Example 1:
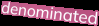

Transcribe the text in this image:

denominated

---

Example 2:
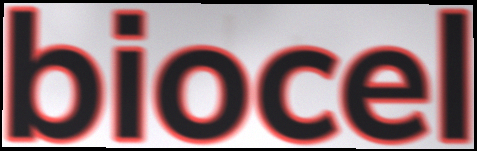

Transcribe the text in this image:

biocel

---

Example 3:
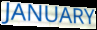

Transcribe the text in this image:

JANUARY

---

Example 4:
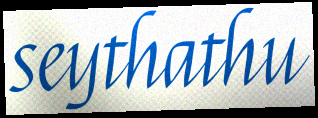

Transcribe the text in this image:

seythathu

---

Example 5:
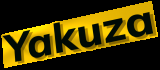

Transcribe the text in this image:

Yakuza